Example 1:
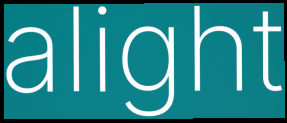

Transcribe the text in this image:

alight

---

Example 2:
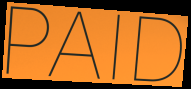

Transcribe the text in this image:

PAID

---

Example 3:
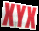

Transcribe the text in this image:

XYX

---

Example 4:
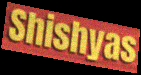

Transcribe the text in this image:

Shishyas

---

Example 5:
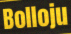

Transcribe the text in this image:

Bolloju